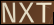
NXT